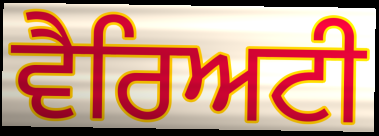
ਵੈਰਿਅਟੀ